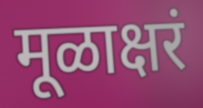
मूळाक्षरं